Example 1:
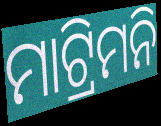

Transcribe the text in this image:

ମାଟ୍ରିମନି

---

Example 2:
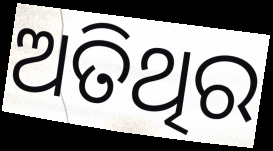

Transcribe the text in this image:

ଅତିଥିର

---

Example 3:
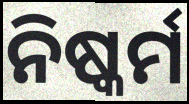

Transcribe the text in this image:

ନିଷ୍କର୍ମ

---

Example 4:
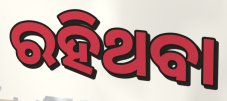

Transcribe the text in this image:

ରହିଥବା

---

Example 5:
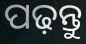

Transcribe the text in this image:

ପଢ଼ନ୍ତୁ